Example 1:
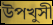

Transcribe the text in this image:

উপখুসী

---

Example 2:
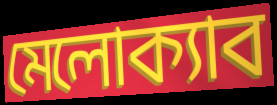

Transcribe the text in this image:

মেলোক্যাব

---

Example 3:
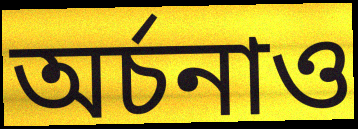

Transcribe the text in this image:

অর্চনাও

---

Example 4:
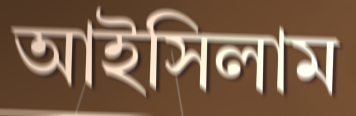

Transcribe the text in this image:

আইসিলাম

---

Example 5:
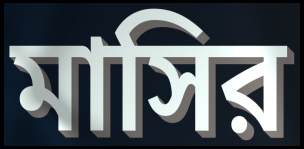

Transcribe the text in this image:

মাসির